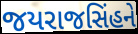
જયરાજસિંહને